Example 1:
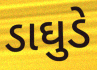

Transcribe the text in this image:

ડાઘુડે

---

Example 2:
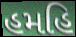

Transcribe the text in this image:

હમહિ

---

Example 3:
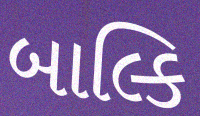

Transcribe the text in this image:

બાલ્કિ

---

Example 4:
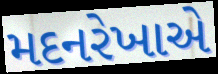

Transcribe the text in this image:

મદનરેખાએ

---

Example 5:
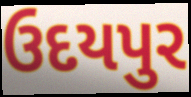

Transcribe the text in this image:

ઉદયપુર